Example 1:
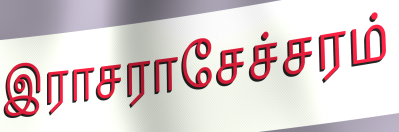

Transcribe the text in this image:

இராசராசேச்சரம்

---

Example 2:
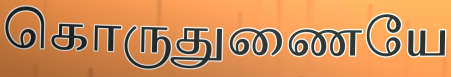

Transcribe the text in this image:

கொருதுணையே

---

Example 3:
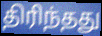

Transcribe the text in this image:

திரிந்தது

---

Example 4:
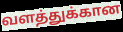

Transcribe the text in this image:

வளத்துக்கான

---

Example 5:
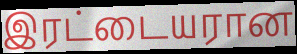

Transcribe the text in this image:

இரட்டையரான